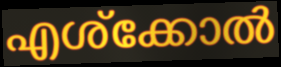
എശ്ക്കോൽ